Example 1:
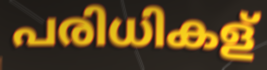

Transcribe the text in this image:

പരിധികള്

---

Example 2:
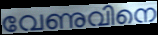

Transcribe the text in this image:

വേണുവിനെ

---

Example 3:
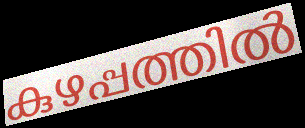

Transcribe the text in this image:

കുഴപ്പത്തിൽ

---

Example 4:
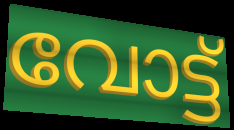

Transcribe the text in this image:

വോട്ട്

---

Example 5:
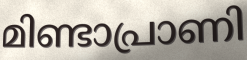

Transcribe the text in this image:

മിണ്ടാപ്രാണി